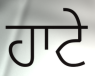
ਹਾਟੇ